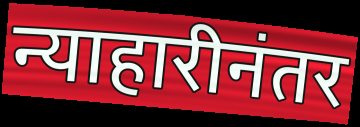
न्याहारीनंतर